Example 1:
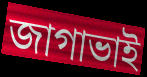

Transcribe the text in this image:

জাগাভাই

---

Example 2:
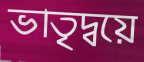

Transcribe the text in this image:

ভাতৃদ্বয়ে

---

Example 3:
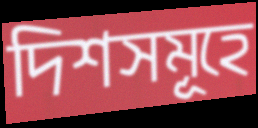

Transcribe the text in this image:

দিশসমূহে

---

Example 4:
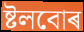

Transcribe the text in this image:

ষ্টলবোৰ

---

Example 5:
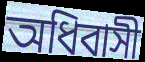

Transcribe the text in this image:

অধিবাসী